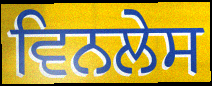
ਵਿਨਲੇਸ